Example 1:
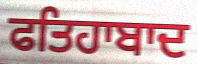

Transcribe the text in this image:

ਫਤਿਹਾਬਾਦ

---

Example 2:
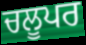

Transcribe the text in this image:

ਚਲੂਪਰ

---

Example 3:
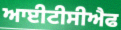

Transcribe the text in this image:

ਆਈਟੀਸੀਐਫ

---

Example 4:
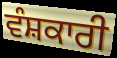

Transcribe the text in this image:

ਵੰਸ਼ਕਾਰੀ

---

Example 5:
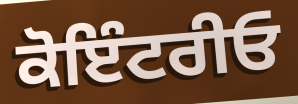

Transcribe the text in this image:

ਕੋਇੰਟਰੀਓ